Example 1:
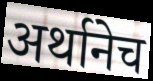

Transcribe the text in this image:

अर्थानेच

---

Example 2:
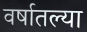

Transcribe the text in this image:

वर्षातल्या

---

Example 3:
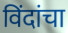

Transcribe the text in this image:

विंदांचा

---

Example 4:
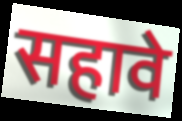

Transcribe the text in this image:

सहावे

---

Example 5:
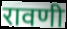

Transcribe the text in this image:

रावणी